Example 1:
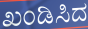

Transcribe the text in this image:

ಖಂಡಿಸಿದ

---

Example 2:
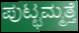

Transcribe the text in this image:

ಪುಟ್ಟಮ್ಮತ್ತೆ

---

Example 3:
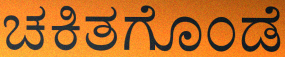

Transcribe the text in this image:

ಚಕಿತಗೊಂಡೆ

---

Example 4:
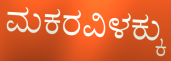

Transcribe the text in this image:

ಮಕರವಿಳಕ್ಕು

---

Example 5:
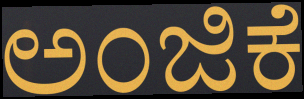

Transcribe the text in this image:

ಅಂಜಿಕೆ